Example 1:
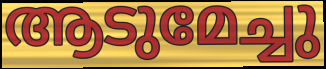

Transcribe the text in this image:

ആടുമേച്ചു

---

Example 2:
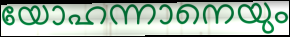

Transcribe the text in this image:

യോഹന്നാനെയും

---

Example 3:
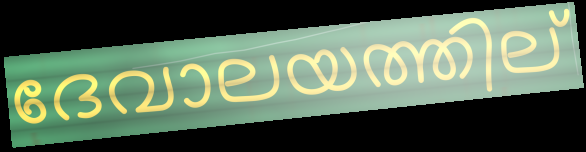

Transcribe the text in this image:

ദേവാലയത്തില്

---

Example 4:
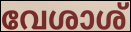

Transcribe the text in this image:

വേശാശ്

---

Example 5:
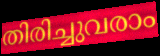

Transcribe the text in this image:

തിരിച്ചുവരാം